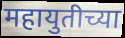
महायुतीच्या